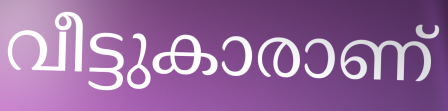
വീട്ടുകാരാണ്